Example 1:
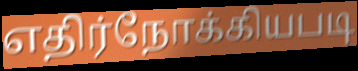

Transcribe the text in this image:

எதிர்நோக்கியபடி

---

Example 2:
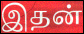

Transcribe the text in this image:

இதன்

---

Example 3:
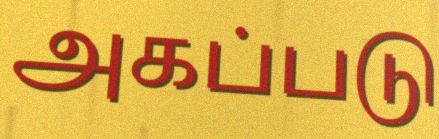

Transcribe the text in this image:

அகப்படு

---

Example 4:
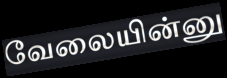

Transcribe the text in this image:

வேலையின்னு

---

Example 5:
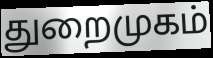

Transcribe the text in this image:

துறைமுகம்